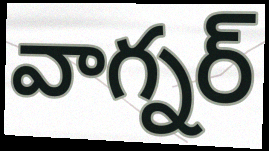
వాగ్నర్